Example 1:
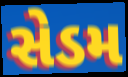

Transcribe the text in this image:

સેડમ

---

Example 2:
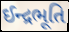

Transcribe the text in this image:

ઈન્દ્રભૂતિ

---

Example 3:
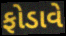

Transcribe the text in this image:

ફોડાવે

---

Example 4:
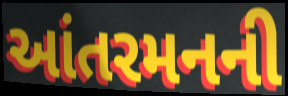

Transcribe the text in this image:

આંતરમનની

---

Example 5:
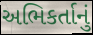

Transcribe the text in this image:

અભિકર્તાનું